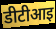
डीटीआइ